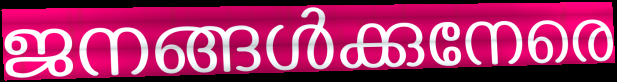
ജനങ്ങൾക്കുനേരെ